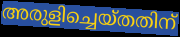
അരുളിച്ചെയ്തതിന്